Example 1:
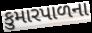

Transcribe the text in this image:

કુમારપાળના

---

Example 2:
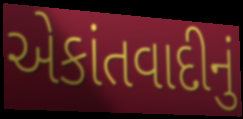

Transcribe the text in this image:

એકાંતવાદીનું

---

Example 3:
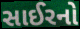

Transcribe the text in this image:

સાઈરનો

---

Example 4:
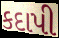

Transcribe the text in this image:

કદાપી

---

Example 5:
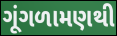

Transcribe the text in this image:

ગૂંગળામણથી